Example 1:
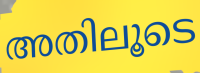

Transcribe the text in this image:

അതിലൂടെ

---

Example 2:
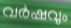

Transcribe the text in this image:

വർഷവും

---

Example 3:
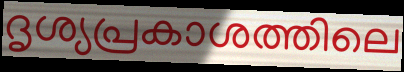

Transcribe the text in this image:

ദൃശ്യപ്രകാശത്തിലെ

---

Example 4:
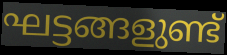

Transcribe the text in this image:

ഘട്ടങ്ങളുണ്ട്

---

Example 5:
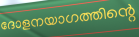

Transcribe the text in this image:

ദോളനയാഗത്തിന്റെ